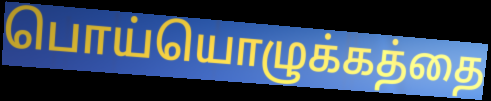
பொய்யொழுக்கத்தை